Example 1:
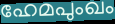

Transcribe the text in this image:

ഹേമപുംഖം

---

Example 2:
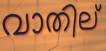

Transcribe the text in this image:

വാതില്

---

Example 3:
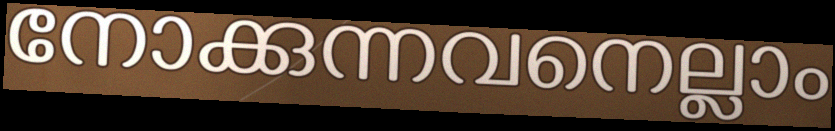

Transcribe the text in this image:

നോക്കുന്നവനെല്ലാം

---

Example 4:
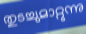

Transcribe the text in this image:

തുടച്ചുമാറ്റുന്നു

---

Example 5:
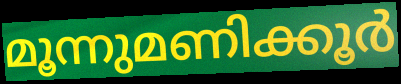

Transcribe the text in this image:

മൂന്നുമണിക്കൂർ